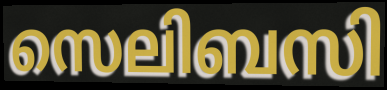
സെലിബസി